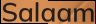
Salaam